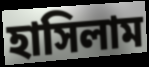
হাসিলাম